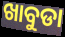
ଖାବୁଡା